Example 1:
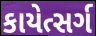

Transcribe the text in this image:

કાયેત્સર્ગ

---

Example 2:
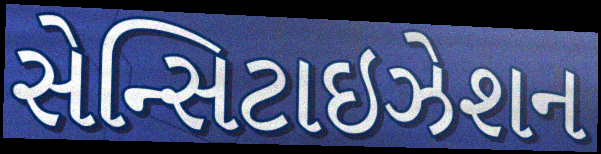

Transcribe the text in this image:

સેન્સિટાઇઝેશન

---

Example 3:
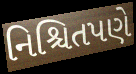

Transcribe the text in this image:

નિશ્ચિતપણે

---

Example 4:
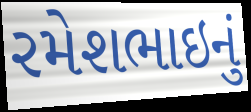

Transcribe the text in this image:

રમેશભાઇનું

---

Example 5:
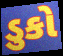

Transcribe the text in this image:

ડુકો